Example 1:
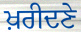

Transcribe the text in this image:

ਖ਼ਰੀਦਣੇ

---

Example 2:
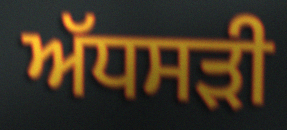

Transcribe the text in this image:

ਅੱਧਸੜੀ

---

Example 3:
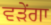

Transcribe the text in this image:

ਵੜੇਂਗਾ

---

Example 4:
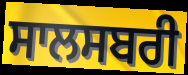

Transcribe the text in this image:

ਸਾਲਸਬਰੀ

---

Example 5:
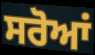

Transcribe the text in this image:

ਸਰੋਆਂ